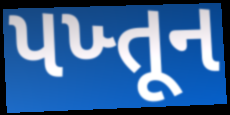
પખ્તૂન